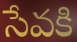
సేవకి